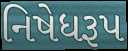
નિષેધરૂપ